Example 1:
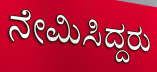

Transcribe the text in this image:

ನೇಮಿಸಿದ್ದರು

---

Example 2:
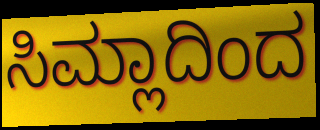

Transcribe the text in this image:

ಸಿಮ್ಲಾದಿಂದ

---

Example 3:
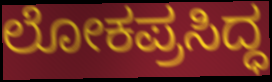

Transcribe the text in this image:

ಲೋಕಪ್ರಸಿದ್ಧ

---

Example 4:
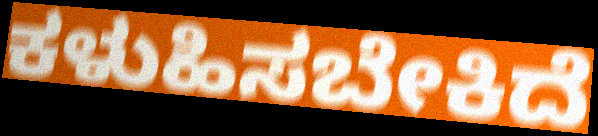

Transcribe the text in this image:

ಕಳುಹಿಸಬೇಕಿದೆ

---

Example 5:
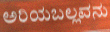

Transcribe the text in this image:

ಅರಿಯಬಲ್ಲವನು